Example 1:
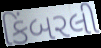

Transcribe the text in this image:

કિંબરલી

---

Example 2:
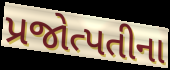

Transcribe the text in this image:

પ્રજોત્પતીના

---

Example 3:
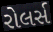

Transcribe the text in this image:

રોલર્સ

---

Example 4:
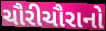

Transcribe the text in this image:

ચૌરીચૌરાનો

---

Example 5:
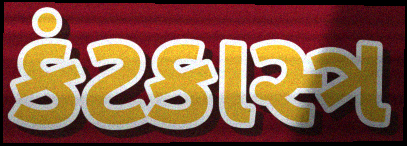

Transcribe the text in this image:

કંટકાસ્ત્ર